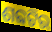
ଶବ୍ଦଟିର